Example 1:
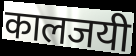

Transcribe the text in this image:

कालजयी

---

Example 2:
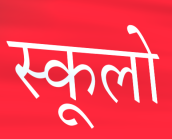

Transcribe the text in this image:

स्कूलो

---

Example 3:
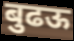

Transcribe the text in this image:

बुढऊ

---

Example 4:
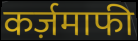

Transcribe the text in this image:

कर्ज़माफी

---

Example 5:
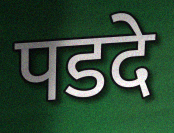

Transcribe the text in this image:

पडदे